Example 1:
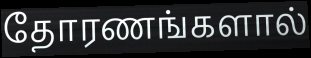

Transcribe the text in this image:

தோரணங்களால்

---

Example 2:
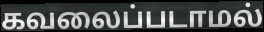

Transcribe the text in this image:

கவலைப்படாமல்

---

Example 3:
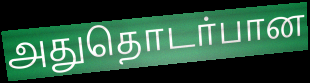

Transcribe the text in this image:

அதுதொடர்பான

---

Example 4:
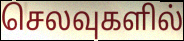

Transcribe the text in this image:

செலவுகளில்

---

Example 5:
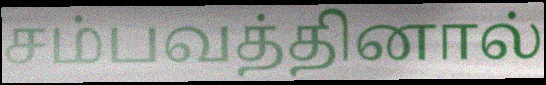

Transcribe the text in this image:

சம்பவத்தினால்